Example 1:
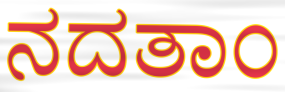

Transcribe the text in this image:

ನದತಾಂ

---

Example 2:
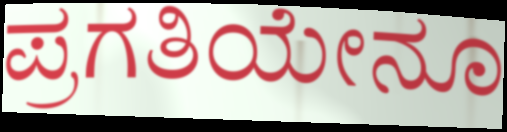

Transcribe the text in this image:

ಪ್ರಗತಿಯೇನೂ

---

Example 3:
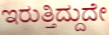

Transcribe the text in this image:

ಇರುತ್ತಿದ್ದುದೇ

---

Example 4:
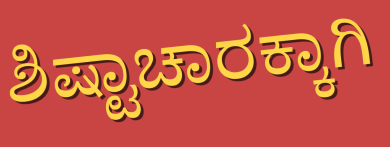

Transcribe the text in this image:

ಶಿಷ್ಟಾಚಾರಕ್ಕಾಗಿ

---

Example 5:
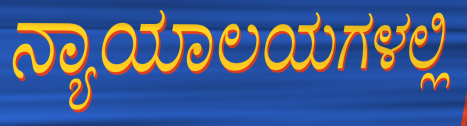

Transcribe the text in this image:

ನ್ಯಾಯಾಲಯಗಳಲ್ಲಿ